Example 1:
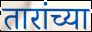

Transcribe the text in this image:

तारांच्या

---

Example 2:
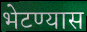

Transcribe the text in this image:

भेटण्यास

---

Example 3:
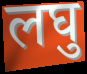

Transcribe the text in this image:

लघु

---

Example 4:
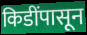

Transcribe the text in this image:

किडींपासून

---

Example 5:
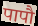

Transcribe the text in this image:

पापौ